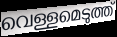
വെള്ളമെടുത്ത്